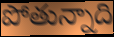
పోతున్నాది